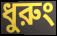
ধুরুং